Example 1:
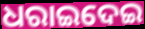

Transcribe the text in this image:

ଧରାଇଦେଇ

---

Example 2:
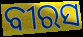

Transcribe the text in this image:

ବୀରସ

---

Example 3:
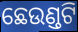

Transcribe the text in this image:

ଛେଉଣ୍ଡଟି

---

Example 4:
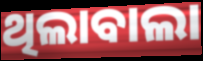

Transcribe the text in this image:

ଥିଲାବାଲା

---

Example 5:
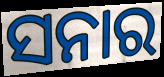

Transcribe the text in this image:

ସନାର